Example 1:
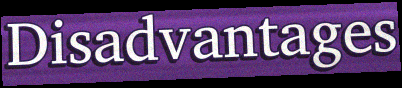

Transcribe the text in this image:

Disadvantages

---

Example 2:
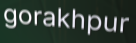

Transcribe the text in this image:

gorakhpur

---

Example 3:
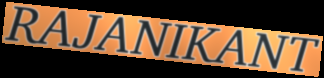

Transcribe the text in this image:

RAJANIKANT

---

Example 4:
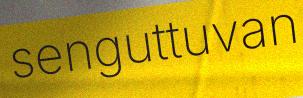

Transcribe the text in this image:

senguttuvan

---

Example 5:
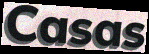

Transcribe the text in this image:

Casas